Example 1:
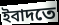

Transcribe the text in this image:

ইবাদতে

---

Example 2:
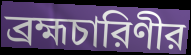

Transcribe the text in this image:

ব্রহ্মচারিণীর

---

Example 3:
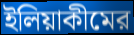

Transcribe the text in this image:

ইলিয়াকীমের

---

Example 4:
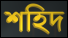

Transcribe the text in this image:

শহিদ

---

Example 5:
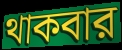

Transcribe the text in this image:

থাকবার